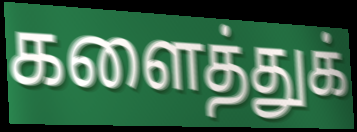
களைத்துக்